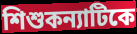
শিশুকন্যাটিকে